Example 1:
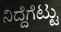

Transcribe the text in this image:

ನಿದ್ದೆಗೆಟ್ಟು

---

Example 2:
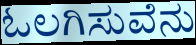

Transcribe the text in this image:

ಓಲಗಿಸುವೆನು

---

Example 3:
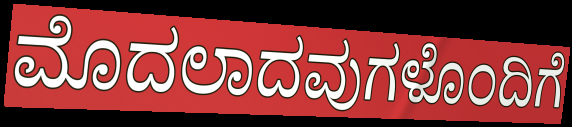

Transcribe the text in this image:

ಮೊದಲಾದವುಗಳೊಂದಿಗೆ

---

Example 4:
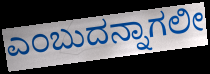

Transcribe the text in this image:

ಎಂಬುದನ್ನಾಗಲೀ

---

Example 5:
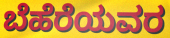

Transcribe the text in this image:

ಬೆಹೆರೆಯವರ